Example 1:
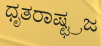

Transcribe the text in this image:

ಧೃತರಾಷ್ಟ್ರಜ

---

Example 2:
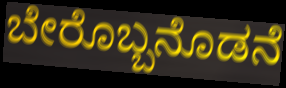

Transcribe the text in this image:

ಬೇರೊಬ್ಬನೊಡನೆ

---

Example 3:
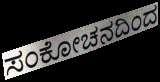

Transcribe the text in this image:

ಸಂಕೋಚನದಿಂದ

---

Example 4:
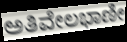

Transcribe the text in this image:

ಅತಿವೇಲಭಾಣೀ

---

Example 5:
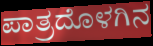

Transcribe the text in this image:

ಪಾತ್ರದೊಳಗಿನ